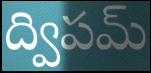
ద్విపమ్